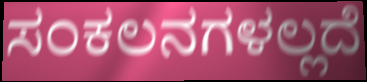
ಸಂಕಲನಗಳಲ್ಲದೆ